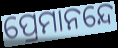
ପ୍ରେମାନନ୍ଦେ